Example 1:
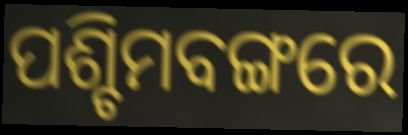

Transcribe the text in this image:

ପଶ୍ଚିମବଙ୍ଗରେ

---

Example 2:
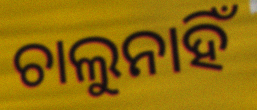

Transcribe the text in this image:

ଚାଲୁନାହିଁ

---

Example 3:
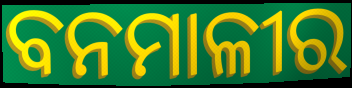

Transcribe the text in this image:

ବନମାଳୀର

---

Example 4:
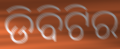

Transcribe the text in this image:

ଡିବିଟିର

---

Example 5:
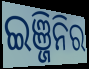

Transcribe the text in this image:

ଇଞ୍ଜିନିର